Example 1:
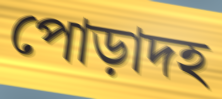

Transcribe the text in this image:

পোড়াদহ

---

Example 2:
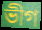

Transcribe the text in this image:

ভীগ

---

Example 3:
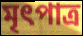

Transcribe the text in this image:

মৃৎপাত্র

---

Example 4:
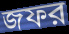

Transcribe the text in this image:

জফর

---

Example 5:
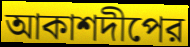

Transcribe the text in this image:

আকাশদীপের